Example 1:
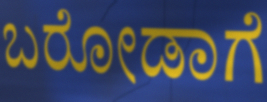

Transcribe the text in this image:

ಬರೋಡಾಗೆ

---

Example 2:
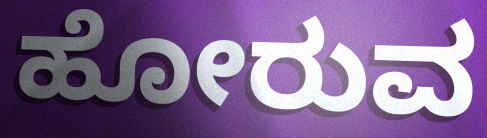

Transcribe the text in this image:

ಹೋರುವ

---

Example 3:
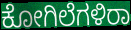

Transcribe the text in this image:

ಕೋಗಿಲೆಗಳಿರಾ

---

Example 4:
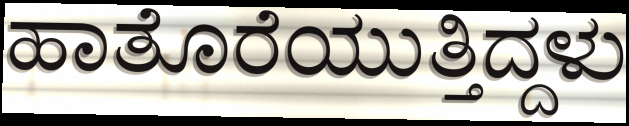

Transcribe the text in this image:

ಹಾತೊರೆಯುತ್ತಿದ್ದಳು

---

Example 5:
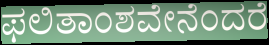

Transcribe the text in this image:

ಫಲಿತಾಂಶವೇನೆಂದರೆ